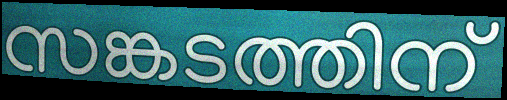
സങ്കടത്തിന്